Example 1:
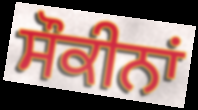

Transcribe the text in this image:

ਸੌਕੀਨਾਂ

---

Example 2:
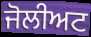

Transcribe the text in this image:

ਜੋਲੀਅਟ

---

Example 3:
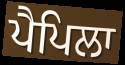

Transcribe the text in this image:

ਪੈਪਿਲਾ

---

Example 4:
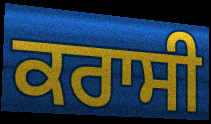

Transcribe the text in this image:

ਕਰਾਸੀ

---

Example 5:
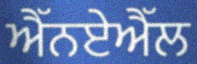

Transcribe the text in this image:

ਐੱਨਏਐੱਲ